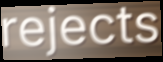
rejects